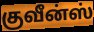
குவீன்ஸ்